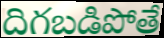
దిగబడిపోతే